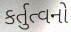
કર્તુત્વનો